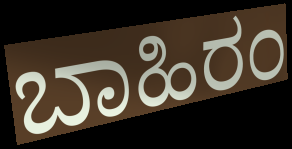
ಬಾಹಿರಂ